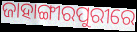
ଜାହାଙ୍ଗୀରପୁରୀରେ